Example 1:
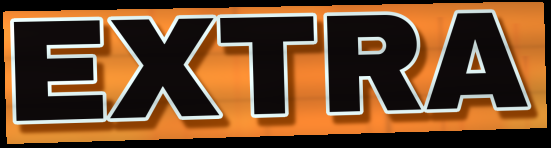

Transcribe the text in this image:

EXTRA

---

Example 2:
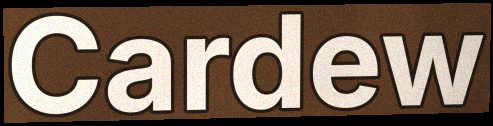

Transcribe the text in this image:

Cardew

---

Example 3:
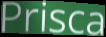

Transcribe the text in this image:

Prisca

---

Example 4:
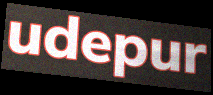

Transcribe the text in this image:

udepur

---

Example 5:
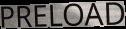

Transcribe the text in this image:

PRELOAD